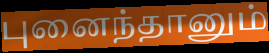
புனைந்தானும்